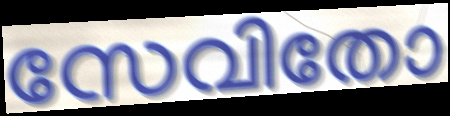
സേവിതോ